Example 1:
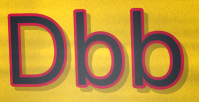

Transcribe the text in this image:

Dbb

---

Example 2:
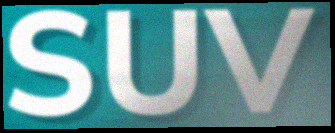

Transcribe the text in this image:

SUV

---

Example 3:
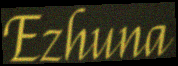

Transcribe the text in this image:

Ezhuna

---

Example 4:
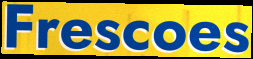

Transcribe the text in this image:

Frescoes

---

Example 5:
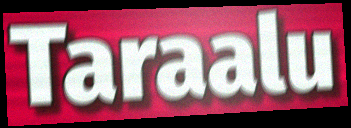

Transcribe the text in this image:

Taraalu